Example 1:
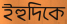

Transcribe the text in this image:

ইহুদিকে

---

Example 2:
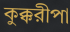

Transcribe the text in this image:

কুক্করীপা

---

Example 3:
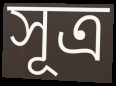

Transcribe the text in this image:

সূত্র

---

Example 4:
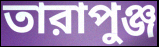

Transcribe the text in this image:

তারাপুঞ্জ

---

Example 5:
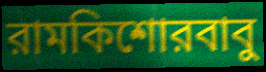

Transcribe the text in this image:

রামকিশোরবাবু